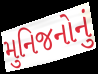
મુનિજનોનું